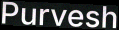
Purvesh